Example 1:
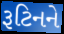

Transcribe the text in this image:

રૂટિનને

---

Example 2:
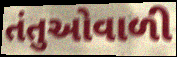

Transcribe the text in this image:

તંતુઓવાળી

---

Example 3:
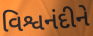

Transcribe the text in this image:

વિશ્વનંદીને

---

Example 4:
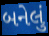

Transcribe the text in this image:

બનેલું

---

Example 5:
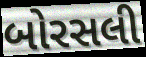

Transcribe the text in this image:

બોરસલી